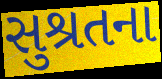
સુશ્રતના